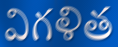
విగళిత